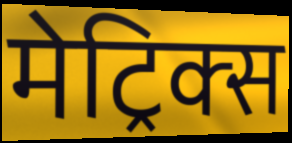
मेट्रिक्‍स